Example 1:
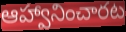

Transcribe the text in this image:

ఆహ్వానించారట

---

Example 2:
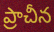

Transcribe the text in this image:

ప్రాచీన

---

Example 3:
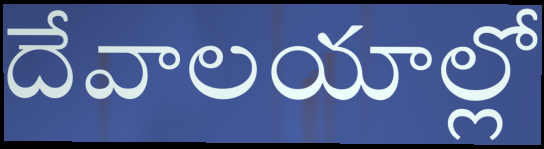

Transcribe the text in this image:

దేవాలయాల్లో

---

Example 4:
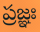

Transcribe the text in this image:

ప్రజ్ఞః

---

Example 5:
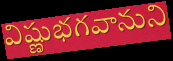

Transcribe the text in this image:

విష్ణుభగవానుని